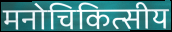
मनोचिकित्सीय